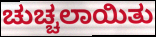
ಚುಚ್ಚಲಾಯಿತು